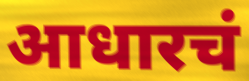
आधारचं